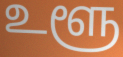
உளூ